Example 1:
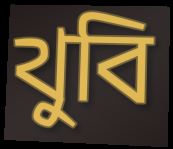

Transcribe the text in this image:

থুবি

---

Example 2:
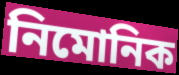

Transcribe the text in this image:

নিমোনিক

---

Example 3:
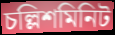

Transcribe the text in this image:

চল্লিশমিনিট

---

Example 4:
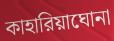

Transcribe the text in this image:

কাহারিয়াঘোনা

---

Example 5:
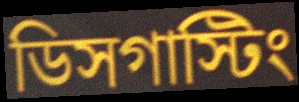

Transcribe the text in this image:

ডিসগাস্টিং